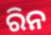
ରିନ